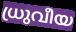
ധ്രുവീയ